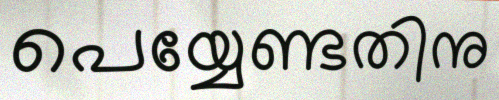
പെയ്യേണ്ടതിനു